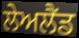
ਲੇਅਲੈਂਡ